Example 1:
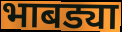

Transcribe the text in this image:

भाबड्या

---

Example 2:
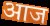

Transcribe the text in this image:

आज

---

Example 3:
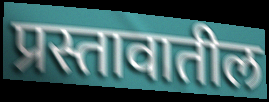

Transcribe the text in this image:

प्रस्तावातील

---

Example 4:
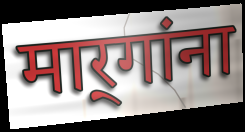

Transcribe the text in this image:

मार्गांना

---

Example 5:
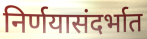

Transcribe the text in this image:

निर्णयासंदर्भात